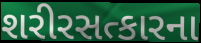
શરીરસત્કારના